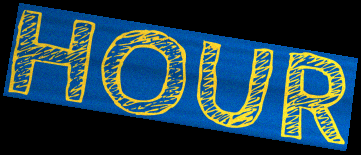
HOUR